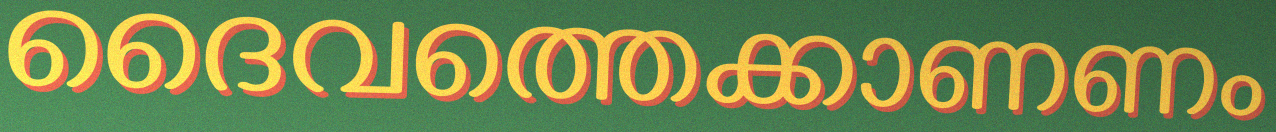
ദൈവത്തെക്കാണണം